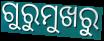
ଗୁରୁମୁଖରୁ